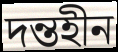
দন্তহীন